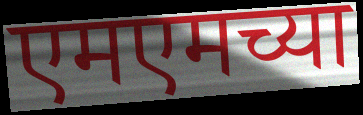
एमएमच्या